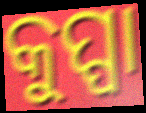
କୁପ୍ପା